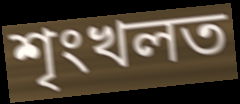
শৃংখলত